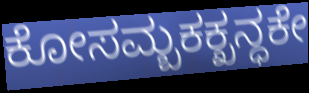
ಕೋಸಮ್ಬಕಕ್ಖನ್ಧಕೇ